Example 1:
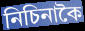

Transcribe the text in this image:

নিচিনাকৈ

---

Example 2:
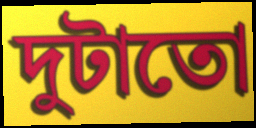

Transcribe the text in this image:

দুটাতো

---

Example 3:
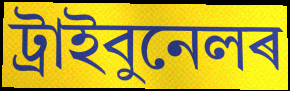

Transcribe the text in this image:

ট্ৰাইবুনেলৰ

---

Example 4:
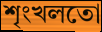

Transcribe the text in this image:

শৃংখলতো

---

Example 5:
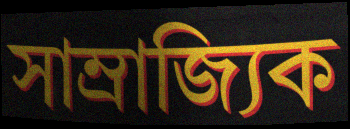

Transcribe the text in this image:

সাম্ৰাজ্যিক